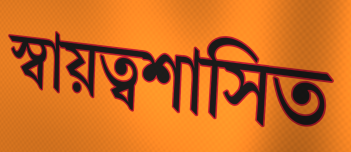
স্বায়ত্বশাসিত